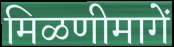
मिळणीमागें